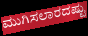
ಮುಗಿಸಲಾರದಷ್ಟು